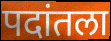
पदांतला